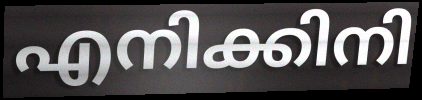
എനിക്കിനി